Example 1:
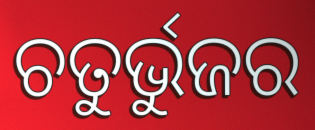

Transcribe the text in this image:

ଚତୁର୍ଭୁଜର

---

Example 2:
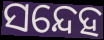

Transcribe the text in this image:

ସନ୍ଦେହ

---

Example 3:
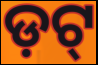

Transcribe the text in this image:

ଡ଼ଟ୍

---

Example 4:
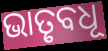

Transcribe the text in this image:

ଭାତୃବଧୂ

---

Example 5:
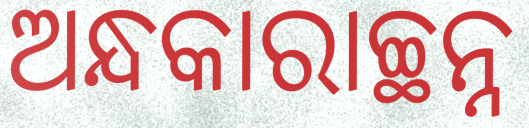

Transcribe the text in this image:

ଅନ୍ଧକାରାଚ୍ଛନ୍ନ